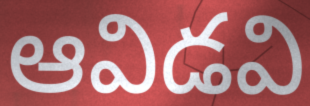
ఆవిడవి